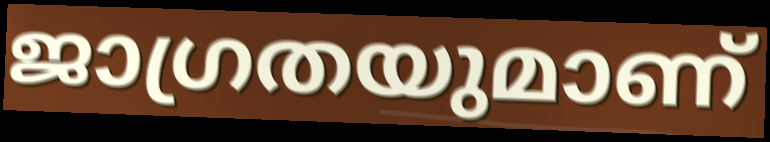
ജാഗ്രതയുമാണ്